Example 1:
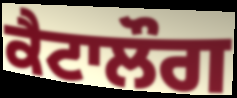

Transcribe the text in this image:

ਕੈਟਾਲੌਗ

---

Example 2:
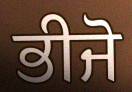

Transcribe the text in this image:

ਭੀਜੋ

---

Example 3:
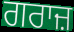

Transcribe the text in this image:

ਗਰਾਜ਼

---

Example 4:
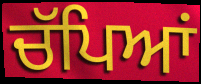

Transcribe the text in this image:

ਚੱਪਿਆਂ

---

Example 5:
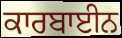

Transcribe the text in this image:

ਕਾਰਬਾਈਨ